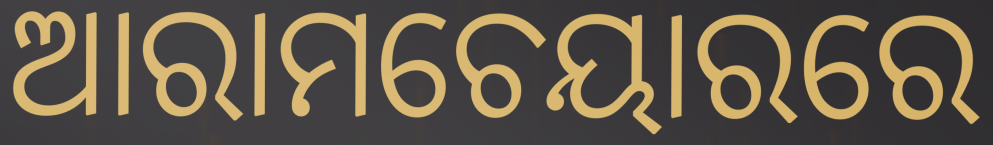
ଆରାମଚେୟାରରେ